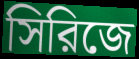
সিরিজে